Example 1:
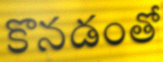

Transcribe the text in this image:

కొనడంతో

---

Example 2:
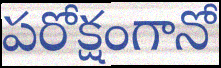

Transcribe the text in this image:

పరోక్షంగానో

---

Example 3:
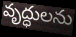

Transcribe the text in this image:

వృద్ధులను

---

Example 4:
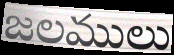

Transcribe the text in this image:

జలములు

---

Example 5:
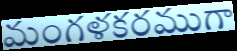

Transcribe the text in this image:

మంగళకరముగా